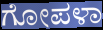
ಗೋಪಳಾ